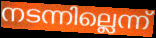
നടന്നില്ലെന്ന്